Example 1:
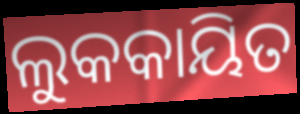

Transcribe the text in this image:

ଲୁକକାୟିତ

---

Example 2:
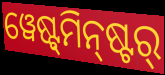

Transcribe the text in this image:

ୱେଷ୍ଟ୍‌ମିନ୍‌ଷ୍ଟର୍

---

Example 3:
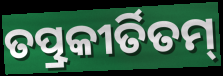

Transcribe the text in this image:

ତତ୍ପ୍ରକୀର୍ତିତମ୍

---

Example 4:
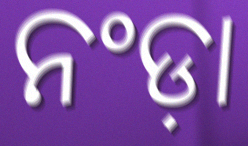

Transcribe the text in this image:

ନଂଡ଼ା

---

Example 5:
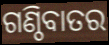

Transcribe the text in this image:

ଗଣ୍ଠିବାତର